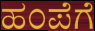
ಹಂಪೆಗೆ